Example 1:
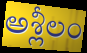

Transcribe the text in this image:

అశ్లీలం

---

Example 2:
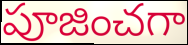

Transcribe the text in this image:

పూజించగా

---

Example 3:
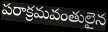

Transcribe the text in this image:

పరాక్రమవంతులైన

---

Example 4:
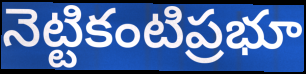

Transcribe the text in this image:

నెట్టికంటిప్రభూ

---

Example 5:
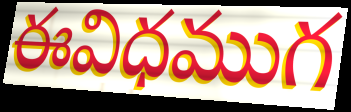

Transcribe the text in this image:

ఈవిధముగ